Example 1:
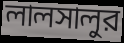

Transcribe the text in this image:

লালসালুর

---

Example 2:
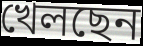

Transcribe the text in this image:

খেলছেন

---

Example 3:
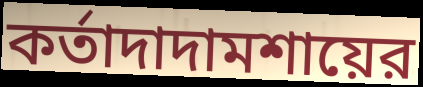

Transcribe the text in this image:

কর্তাদাদামশায়ের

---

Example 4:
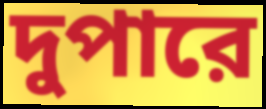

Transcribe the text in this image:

দুপারে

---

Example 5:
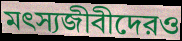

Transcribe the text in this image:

মৎস্যজীবীদেরও